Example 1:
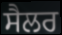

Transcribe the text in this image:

ਸੈਲਰ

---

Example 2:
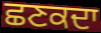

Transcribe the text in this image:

ਛਣਕਦਾ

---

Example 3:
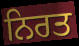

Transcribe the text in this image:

ਨਿਰਤ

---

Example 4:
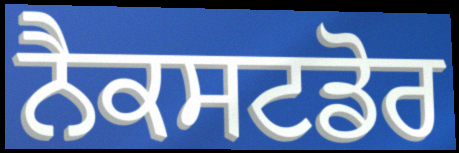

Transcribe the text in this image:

ਨੈਕਸਟਡੋਰ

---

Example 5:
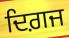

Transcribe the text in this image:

ਦਿਗ਼ਜ